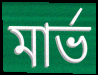
মার্ভ